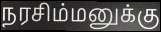
நரசிம்மனுக்கு